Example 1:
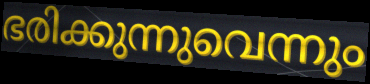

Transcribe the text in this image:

ഭരിക്കുന്നുവെന്നും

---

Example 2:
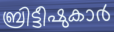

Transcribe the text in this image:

ബ്രിട്ടീഷുകാർ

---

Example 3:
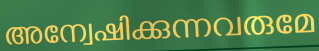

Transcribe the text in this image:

അന്വേഷിക്കുന്നവരുമേ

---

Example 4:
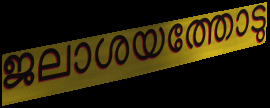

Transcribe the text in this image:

ജലാശയത്തോടു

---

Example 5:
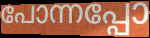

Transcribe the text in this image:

പോന്നപ്പോ